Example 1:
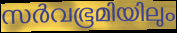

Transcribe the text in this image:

സർവഭൂമിയിലും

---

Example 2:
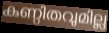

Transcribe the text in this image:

കുണ്ഠിതവുമില്ല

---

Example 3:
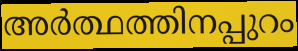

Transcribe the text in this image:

അർത്ഥത്തിനപ്പുറം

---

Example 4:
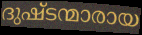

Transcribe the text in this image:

ദുഷ്ടന്മാരായ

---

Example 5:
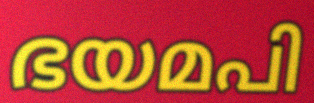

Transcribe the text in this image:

ഭയമപി